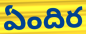
ఏందిర